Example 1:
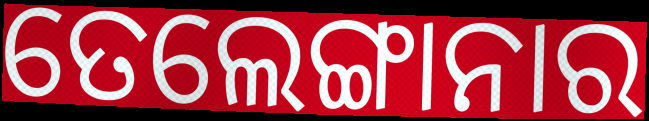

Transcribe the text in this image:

ତେଲେଙ୍ଗାନାର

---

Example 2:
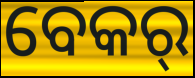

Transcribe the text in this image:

ବେକର୍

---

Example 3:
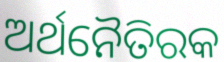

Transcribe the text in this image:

ଅର୍ଥନୈତିରକ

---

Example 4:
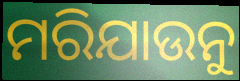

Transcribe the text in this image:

ମରିଯାଉନୁ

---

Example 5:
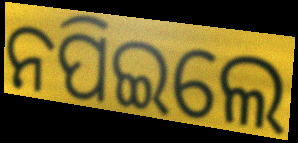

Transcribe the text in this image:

ନପିଇଲେ